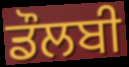
ਡੌਲਬੀ